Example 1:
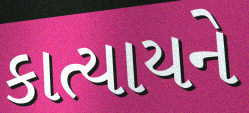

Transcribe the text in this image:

કાત્યાયને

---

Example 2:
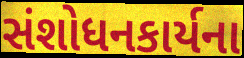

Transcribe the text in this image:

સંશોધનકાર્યના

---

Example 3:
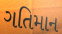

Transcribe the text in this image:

ગતિમાન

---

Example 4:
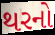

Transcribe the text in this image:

થરનો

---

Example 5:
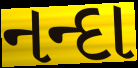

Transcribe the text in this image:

નન્દા